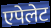
एपेलेट